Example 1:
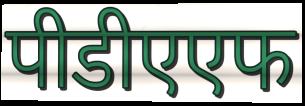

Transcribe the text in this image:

पीडीएएफ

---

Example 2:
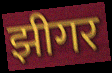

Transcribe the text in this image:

झीगर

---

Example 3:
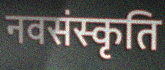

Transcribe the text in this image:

नवसंस्कृति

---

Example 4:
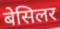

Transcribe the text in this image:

बेसिलर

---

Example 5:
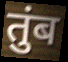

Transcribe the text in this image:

तुंब